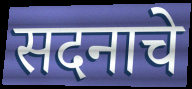
सदनाचे